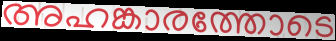
അഹങ്കാരത്തോടെ